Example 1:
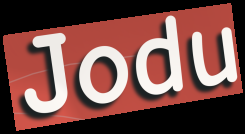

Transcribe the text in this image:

Jodu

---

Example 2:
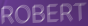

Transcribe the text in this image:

ROBERT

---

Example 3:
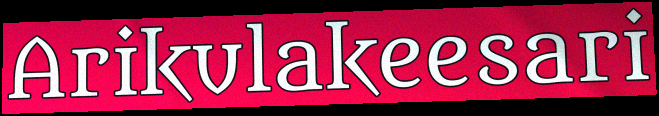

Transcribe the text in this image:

Arikulakeesari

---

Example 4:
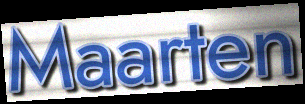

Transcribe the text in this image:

Maarten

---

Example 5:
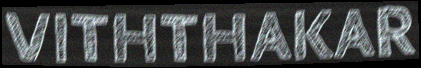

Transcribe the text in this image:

VITHTHAKAR